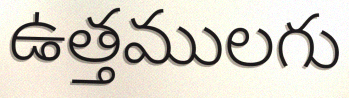
ఉత్తములగు